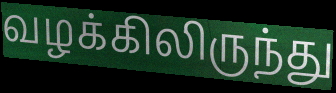
வழக்கிலிருந்து